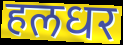
हलधर